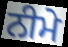
ਨੀਮੇ